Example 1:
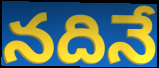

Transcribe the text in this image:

నదినే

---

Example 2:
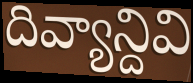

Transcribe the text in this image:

దివ్యాన్దివి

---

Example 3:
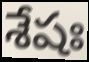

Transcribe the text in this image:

శేషః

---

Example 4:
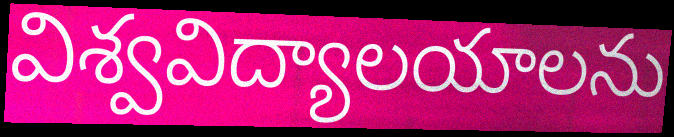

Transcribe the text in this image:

విశ్వవిద్యాలయాలను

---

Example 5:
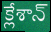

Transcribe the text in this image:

క్లేశాన్